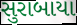
સુરાબાયા